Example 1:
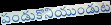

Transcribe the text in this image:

పండుకొనియుండుట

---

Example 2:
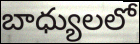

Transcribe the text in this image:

బాధ్యులలో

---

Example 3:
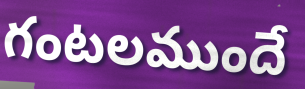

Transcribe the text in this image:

గంటలముందే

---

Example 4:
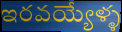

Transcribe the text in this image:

ఇరవయ్యేళ్ళ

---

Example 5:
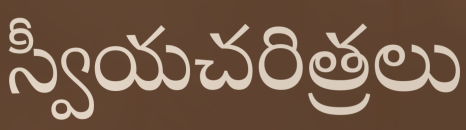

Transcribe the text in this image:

స్వీయచరిత్రలు